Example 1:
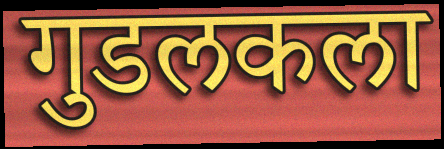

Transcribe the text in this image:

गुडलकला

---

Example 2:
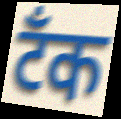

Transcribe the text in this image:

टॅंक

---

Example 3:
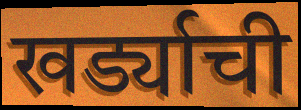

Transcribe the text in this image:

खर्ड्याची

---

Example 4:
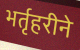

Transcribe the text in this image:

भर्तृहरीने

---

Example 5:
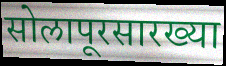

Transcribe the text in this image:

सोलापूरसारख्या